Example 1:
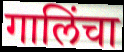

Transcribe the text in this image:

गालिंचा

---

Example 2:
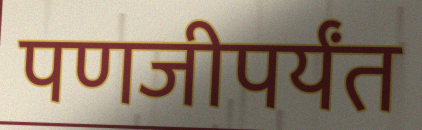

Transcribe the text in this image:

पणजीपर्यंत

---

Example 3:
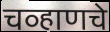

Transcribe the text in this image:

चव्हाणचे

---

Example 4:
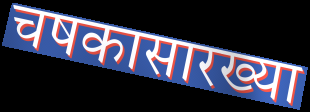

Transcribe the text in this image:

चषकासारख्या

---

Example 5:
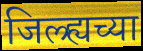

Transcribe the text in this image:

जिल्ह्यच्या